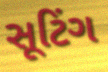
સૂટિંગ